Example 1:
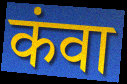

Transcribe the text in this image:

कंवा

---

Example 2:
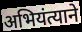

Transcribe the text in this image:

अभियंत्याने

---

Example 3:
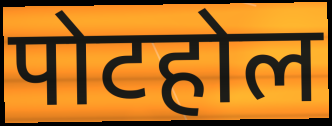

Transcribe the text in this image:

पोटहोल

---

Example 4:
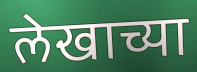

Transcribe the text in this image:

लेखाच्या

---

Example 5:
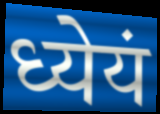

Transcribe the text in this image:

ध्येयं